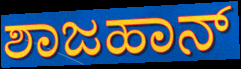
ಶಾಜಹಾನ್